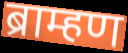
ब्राम्हण